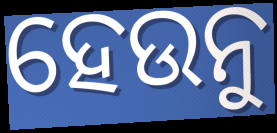
ହେଉନୁ